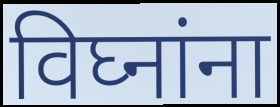
विघ्नांना